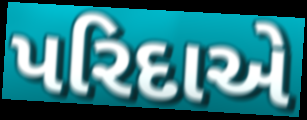
પરિદાએ